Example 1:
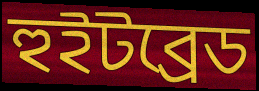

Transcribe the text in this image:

হুইটব্রেড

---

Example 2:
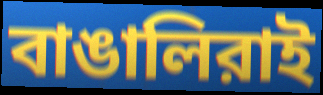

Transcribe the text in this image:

বাঙালিরাই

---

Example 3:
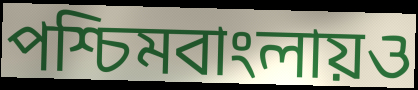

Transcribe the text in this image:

পশ্চিমবাংলায়ও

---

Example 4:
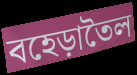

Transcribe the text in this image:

বহেড়াতৈল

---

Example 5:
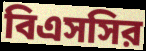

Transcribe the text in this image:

বিএসসির